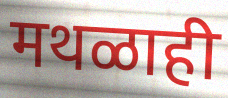
मथळाही